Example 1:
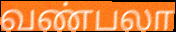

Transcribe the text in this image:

வண்பலா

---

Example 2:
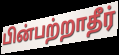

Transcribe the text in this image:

பின்பற்றாதீர்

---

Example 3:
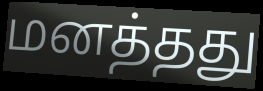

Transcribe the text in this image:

மனத்தது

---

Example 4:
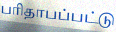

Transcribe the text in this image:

பரிதாபப்பட்டு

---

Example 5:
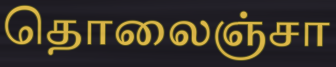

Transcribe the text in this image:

தொலைஞ்சா